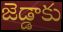
జెడ్డాకు